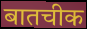
बातचीक